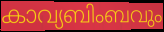
കാവ്യബിംബവും